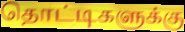
தொட்டிகளுக்கு